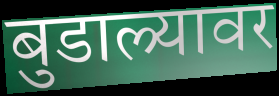
बुडाल्यावर